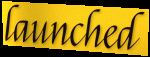
launched